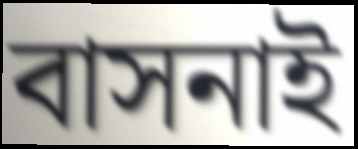
বাসনাই